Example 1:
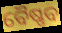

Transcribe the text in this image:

ବୈଷ୍ଣବ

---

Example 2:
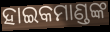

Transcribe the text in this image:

ହାଇକମାଣ୍ଡଙ୍କ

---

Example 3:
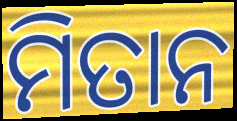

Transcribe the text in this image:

ମିତାନ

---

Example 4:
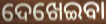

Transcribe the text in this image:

ଦେଖେଇବା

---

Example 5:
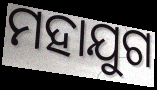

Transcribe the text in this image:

ମହାଯୁଗ